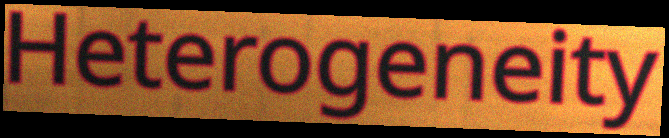
Heterogeneity